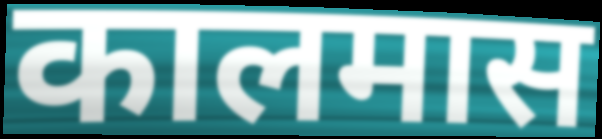
कालमास